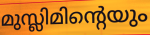
മുസ്ലിമിന്റെയും